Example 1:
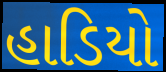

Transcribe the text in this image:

હાડિયો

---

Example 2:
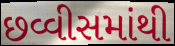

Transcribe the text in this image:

છવ્વીસમાંથી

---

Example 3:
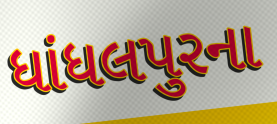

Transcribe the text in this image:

ધાંધલપુરના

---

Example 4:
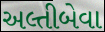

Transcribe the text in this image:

અલ્તીબેવા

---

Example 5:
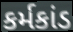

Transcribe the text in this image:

કર્મકાંડ